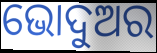
ଭୋଦୁଅର